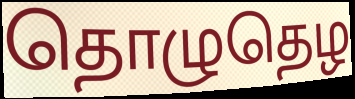
தொழுதெழ